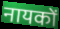
नायकों